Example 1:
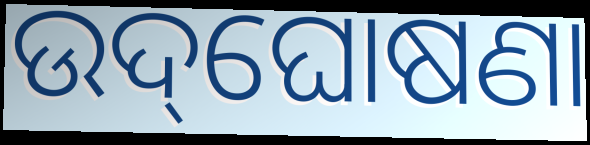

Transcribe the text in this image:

ଉଦ୍‌ଘୋଷଣା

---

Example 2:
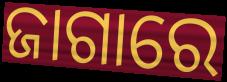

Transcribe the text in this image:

ଜାଗାରେ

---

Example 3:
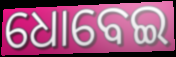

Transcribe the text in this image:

ଧୋବେଇ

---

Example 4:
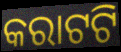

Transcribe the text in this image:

କରାଟଟି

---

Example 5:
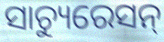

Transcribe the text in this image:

ସାଚ୍ୟୁରେସନ୍